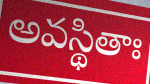
అవస్థితాః